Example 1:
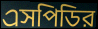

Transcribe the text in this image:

এসপিডির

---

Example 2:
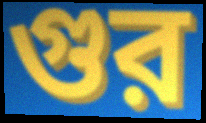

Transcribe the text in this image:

গুর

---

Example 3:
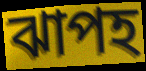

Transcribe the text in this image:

ঝাপহ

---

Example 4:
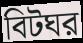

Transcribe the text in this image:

বিটঘর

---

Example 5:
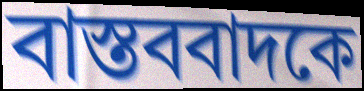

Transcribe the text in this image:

বাস্তববাদকে